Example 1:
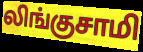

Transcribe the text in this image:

லிங்குசாமி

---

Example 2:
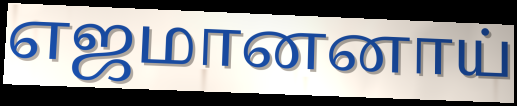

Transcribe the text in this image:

எஜமானனாய்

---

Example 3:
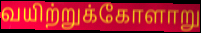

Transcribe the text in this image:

வயிற்றுக்கோளாறு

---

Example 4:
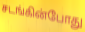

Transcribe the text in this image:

சடங்கின்போது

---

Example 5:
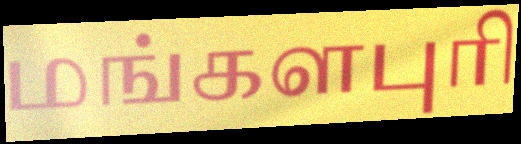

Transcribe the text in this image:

மங்களபுரி